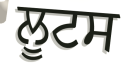
ਲੂਟਸ